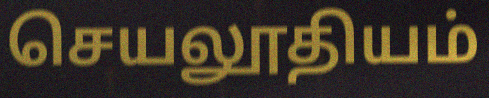
செயலூதியம்